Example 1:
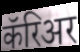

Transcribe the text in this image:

कॅरिअर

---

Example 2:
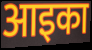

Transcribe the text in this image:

आइका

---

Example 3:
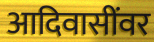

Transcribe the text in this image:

आदिवासींवर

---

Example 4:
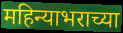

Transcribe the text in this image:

महिन्याभराच्या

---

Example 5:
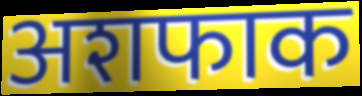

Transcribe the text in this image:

अशफाक